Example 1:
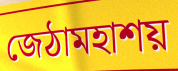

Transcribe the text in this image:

জেঠামহাশয়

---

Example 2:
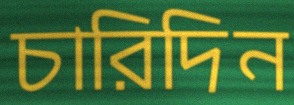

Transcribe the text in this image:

চারিদিন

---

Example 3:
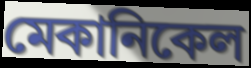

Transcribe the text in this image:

মেকানিকেল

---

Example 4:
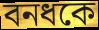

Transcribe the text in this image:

বনধকে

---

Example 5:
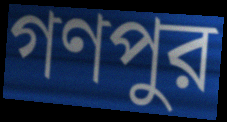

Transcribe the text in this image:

গণপুর